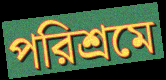
পরিশ্রমে